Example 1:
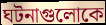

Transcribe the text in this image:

ঘটনাগুলোকে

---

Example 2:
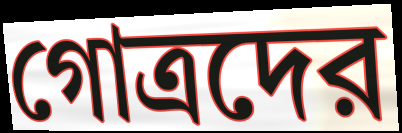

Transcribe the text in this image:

গোত্রদের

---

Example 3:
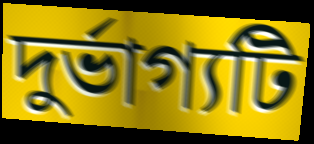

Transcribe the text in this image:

দুর্ভাগ্যটি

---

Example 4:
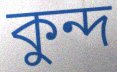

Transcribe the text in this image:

কুন্দ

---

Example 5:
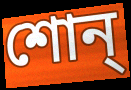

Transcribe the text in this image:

শোন্